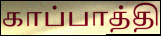
காப்பாத்தி